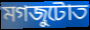
মগজুটোত